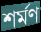
শর্মণ